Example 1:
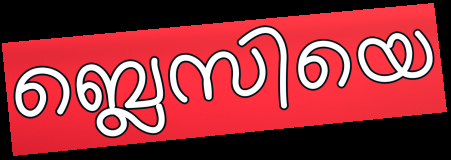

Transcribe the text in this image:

ബ്ലെസിയെ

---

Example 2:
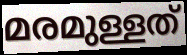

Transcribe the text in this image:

മരമുള്ളത്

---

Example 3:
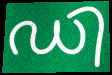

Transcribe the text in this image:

ഡി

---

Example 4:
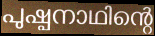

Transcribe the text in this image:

പുഷ്പനാഥിന്റെ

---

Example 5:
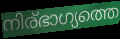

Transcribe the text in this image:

നിര്ഭാഗ്യത്തെ